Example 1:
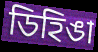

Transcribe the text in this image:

ডিহিঙা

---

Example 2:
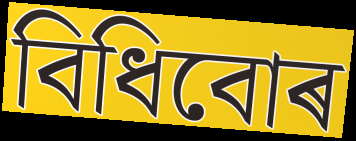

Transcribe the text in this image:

বিধিবোৰ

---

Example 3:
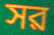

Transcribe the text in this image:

সৱ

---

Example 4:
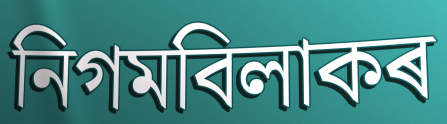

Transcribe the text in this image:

নিগমবিলাকৰ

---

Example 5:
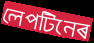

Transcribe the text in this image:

লেপটিনেৰ